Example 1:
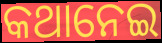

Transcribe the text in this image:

କଥାନେଇ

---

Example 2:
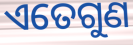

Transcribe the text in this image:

ଏତେଗୁଣ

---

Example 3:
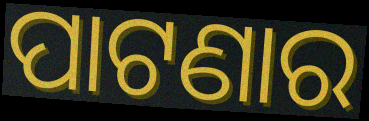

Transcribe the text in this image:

ପାଟଣାର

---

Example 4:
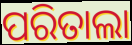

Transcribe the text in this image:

ପରିତାଲା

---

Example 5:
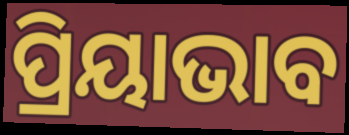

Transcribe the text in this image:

ପ୍ରିୟାଭାବ